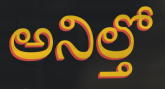
అనిల్తో